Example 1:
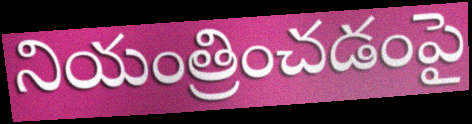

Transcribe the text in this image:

నియంత్రించడంపై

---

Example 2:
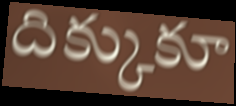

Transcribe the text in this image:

దిక్కుకూ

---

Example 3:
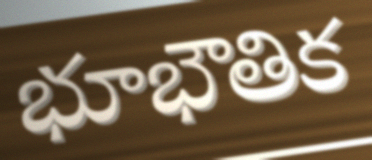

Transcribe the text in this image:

భూభౌతిక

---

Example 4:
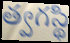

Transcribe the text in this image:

త్వగస్థి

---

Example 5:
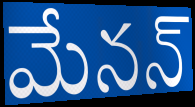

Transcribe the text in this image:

మేనన్